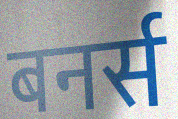
बनर्स